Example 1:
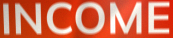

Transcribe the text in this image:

INCOME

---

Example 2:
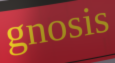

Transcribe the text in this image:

gnosis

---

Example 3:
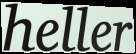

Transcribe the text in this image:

heller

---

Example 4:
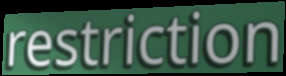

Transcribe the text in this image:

restriction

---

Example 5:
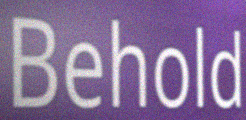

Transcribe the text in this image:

Behold